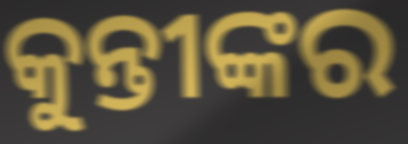
କୁନ୍ତୀଙ୍କର